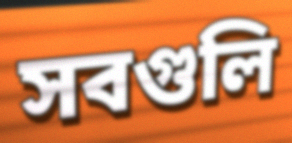
সবগুলি